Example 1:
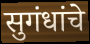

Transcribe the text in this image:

सुगंधांचे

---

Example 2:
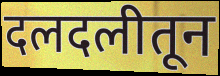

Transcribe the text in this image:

दलदलीतून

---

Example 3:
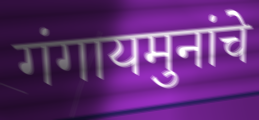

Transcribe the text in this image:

गंगायमुनांचे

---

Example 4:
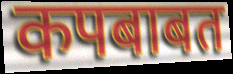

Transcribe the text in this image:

कपबाबत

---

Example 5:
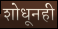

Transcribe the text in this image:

शोधूनही